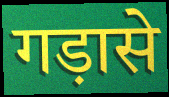
गड़ासे